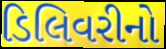
ડિલિવરીનો